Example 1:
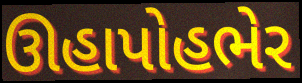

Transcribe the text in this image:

ઊહાપોહભેર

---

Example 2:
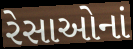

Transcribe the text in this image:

રેસાઓનાં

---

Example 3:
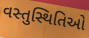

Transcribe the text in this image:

વસ્તુસ્થિતિઓ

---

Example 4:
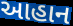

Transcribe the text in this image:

આહાન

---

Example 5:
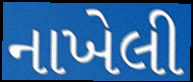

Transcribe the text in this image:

નાખેલી